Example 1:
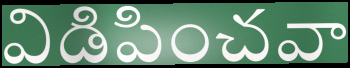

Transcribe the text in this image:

విడిపించవా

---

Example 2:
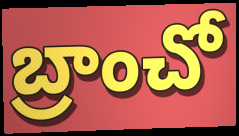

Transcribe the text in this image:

బ్రాంచో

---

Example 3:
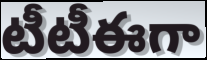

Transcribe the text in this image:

టీటీఈగా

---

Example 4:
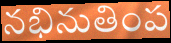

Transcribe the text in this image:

నభినుతింప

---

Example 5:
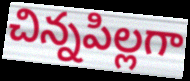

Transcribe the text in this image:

చిన్నపిల్లగా